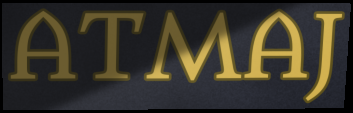
ATMAJ